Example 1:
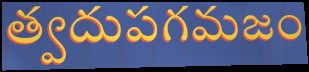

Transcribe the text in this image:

త్వదుపగమజం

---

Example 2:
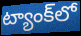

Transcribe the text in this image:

ట్యాంక్‌లో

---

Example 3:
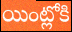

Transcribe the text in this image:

యింట్లోకి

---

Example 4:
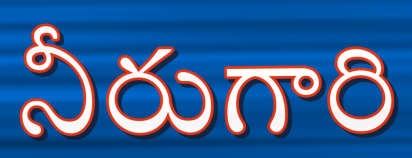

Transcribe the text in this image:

నీరుగారి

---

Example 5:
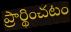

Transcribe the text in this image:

ప్రార్థించటం